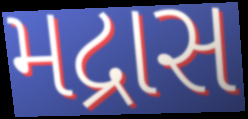
મદ્રાસ